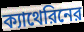
ক্যাথেরিনের